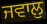
ਜਵਾਲੁ